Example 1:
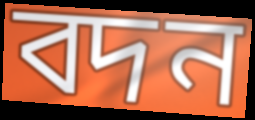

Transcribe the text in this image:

বদন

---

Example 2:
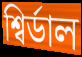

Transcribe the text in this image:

শ্বিৰ্ডাল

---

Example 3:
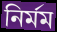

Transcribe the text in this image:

নিৰ্মম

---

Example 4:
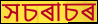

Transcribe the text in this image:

সচৰাচৰ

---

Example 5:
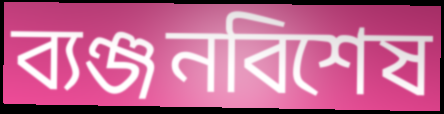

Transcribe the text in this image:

ব্যঞ্জনবিশেষ